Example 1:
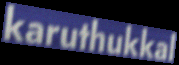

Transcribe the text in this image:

karuthukkal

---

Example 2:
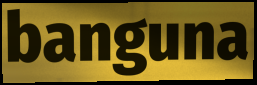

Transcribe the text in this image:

banguna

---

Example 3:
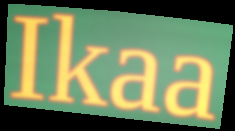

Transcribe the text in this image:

Ikaa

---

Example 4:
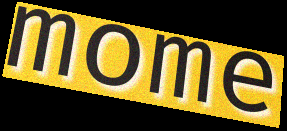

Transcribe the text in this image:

mome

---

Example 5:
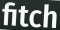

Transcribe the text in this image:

fitch